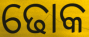
ଢୋକ